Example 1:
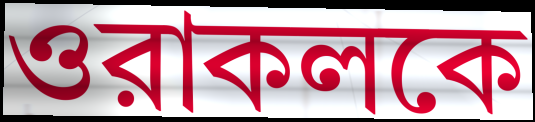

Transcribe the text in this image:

ওরাকলকে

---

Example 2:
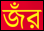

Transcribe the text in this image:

জঁর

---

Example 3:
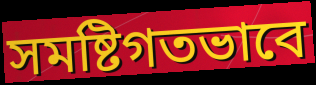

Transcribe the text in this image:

সমষ্টিগতভাবে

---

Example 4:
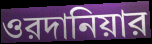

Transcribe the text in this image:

ওরদানিয়ার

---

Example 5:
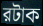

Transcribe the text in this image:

রটাক